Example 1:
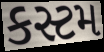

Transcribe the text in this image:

કસ્ટમ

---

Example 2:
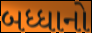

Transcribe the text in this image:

બધ્ધાનો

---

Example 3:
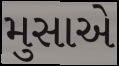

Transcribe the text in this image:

મુસાએ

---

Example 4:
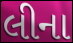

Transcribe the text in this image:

લીના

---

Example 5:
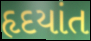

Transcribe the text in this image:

હૃદયાંત